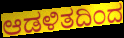
ಆಡಳಿತದಿಂದ